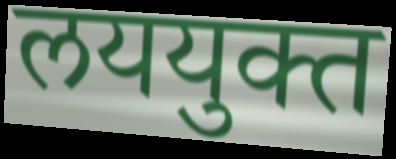
लययुक्त